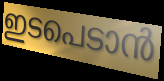
ഇടപെടാൻ